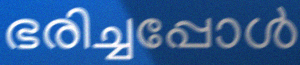
ഭരിച്ചപ്പോൾ